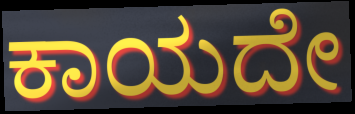
ಕಾಯದೇ